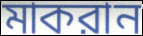
মাকরান